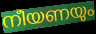
നീയണയും